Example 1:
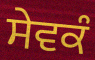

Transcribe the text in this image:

ਸੇਵਕੰ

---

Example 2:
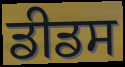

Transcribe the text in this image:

ਡੀਡਸ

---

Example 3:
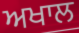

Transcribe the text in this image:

ਅਖਾਲ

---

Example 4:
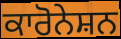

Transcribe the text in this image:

ਕਾਰੋਨੇਸ਼ਨ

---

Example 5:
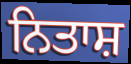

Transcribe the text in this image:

ਨਿਤਾਸ਼